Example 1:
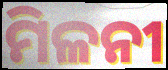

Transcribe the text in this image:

ମିଳନୀ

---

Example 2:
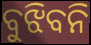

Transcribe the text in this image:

ବୁଝିବନି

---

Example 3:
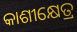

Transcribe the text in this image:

କାଶୀକ୍ଷେତ୍ର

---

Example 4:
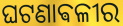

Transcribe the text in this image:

ଘଟଣାଵଳୀର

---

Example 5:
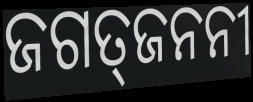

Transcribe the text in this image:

ଜଗତ୍‍ଜନନୀ